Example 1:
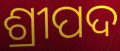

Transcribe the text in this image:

ଶ୍ରୀପଦ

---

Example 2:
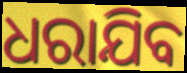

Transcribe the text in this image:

ଧରାଯିବ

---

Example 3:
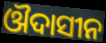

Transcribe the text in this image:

ଔଦାସୀନ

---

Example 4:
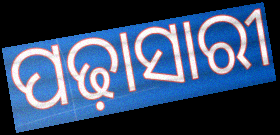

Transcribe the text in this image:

ପଢ଼ାସାରୀ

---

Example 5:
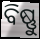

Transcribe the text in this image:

ବିଷ୍ଣୁ